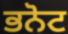
ਭਨੋਟ